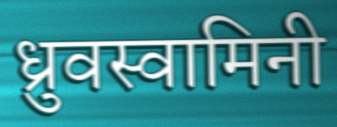
ध्रुवस्वामिनी